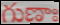
గుణాః